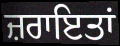
ਜ਼ਰਾਇਤਾਂ